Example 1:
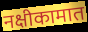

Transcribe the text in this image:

नक्षीकामात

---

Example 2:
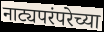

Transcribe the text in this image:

नाट्यपरंपरेच्या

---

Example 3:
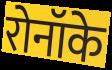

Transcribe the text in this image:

रोनॉके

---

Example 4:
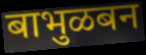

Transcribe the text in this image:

बाभुळबन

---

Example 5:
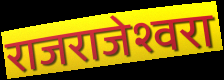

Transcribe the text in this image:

राजराजेश्वरा